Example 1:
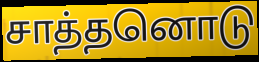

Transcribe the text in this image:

சாத்தனொடு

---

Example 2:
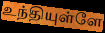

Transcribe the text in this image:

உந்தியுள்ளே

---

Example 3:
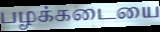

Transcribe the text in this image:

பழக்கடையை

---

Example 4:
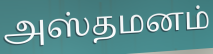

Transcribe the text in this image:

அஸ்தமனம்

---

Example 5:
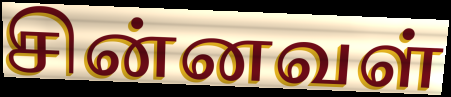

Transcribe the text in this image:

சின்னவள்